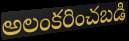
అలంకరించబడి